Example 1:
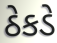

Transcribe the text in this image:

ઠેકડે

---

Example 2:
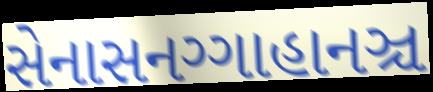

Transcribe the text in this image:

સેનાસનગ્ગાહાનઞ્ચ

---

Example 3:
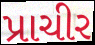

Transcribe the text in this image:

પ્રાચીર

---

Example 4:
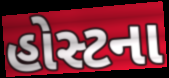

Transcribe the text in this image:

હોસ્ટના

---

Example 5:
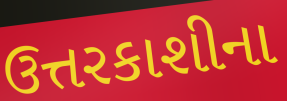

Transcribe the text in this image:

ઉત્તરકાશીના